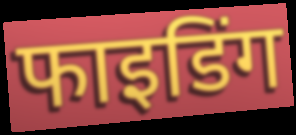
फाइडिंग